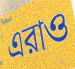
এরাও